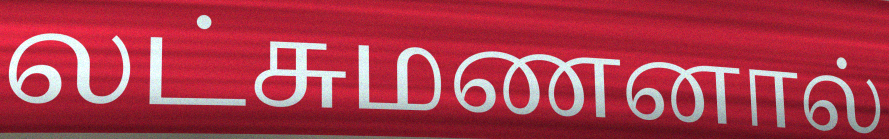
லட்சுமணனால்